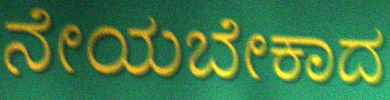
ನೇಯಬೇಕಾದ